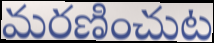
మరణించుట